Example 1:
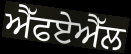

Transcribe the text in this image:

ਐੱਫਏਐੱਲ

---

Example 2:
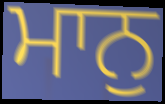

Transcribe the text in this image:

ਮਾਨੁ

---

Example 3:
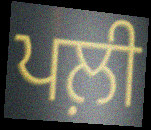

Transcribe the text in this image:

ਪਲ਼ੀ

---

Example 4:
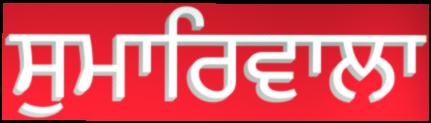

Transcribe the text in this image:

ਸੁਮਾਰਿਵਾਲਾ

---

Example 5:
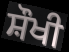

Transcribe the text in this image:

ਸ਼ੌਖੀ